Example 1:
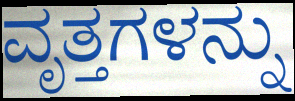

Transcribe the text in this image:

ವೃತ್ತಗಳನ್ನು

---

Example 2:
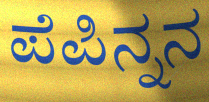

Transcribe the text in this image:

ಪೆಪಿನ್ನನ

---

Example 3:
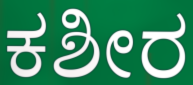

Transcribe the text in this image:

ಕಶೀರ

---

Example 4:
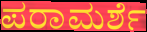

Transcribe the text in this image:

ಪರಾಮರ್ಶೆ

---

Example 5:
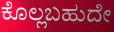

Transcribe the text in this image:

ಕೊಲ್ಲಬಹುದೇ